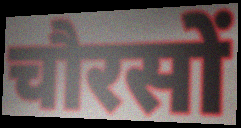
चौरसों